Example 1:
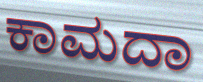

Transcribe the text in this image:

ಕಾಮದಾ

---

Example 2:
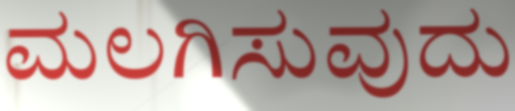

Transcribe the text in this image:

ಮಲಗಿಸುವುದು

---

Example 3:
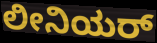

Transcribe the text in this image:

ಲೀನಿಯರ್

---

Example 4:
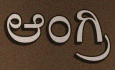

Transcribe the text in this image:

ಆಂಗ್ರಿ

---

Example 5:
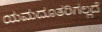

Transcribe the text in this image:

ಯಮದೂತರಿಗಲ್ಲದೆ